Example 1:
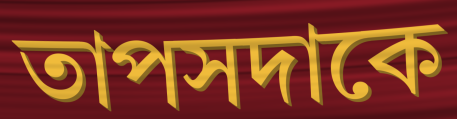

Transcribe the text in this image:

তাপসদাকে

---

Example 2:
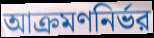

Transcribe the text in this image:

আক্রমণনির্ভর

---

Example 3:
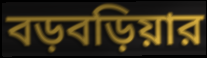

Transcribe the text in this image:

বড়বড়িয়ার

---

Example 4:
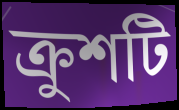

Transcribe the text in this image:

ক্রুশটি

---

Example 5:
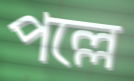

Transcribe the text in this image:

পল্লে